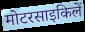
मोटरसाइकिलें